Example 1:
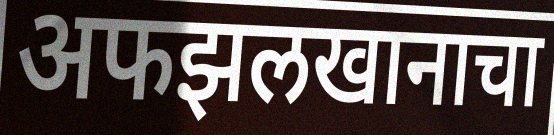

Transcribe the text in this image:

अफझलखानाचा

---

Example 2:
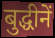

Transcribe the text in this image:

बुद्धीनें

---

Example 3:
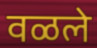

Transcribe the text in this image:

वळले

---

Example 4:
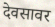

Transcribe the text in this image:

देवसावर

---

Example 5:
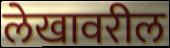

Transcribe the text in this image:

लेखावरील